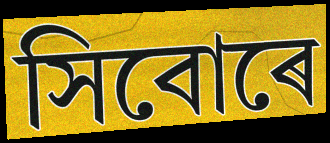
সিবোৰে